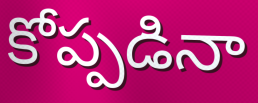
కోప్పడినా